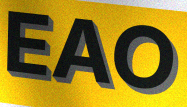
EAO